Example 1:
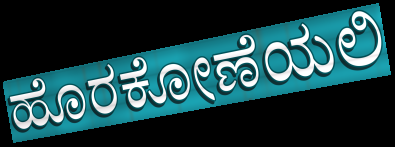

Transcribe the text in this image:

ಹೊರಕೋಣೆಯಲಿ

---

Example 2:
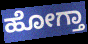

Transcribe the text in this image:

ಹೋಗ್ತಾ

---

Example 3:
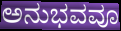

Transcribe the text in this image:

ಅನುಭವವೂ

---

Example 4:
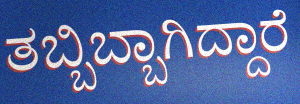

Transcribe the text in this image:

ತಬ್ಬಿಬ್ಬಾಗಿದ್ದಾರೆ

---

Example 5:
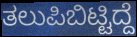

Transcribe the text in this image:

ತಲುಪಿಬಿಟ್ಟಿದ್ದೆ